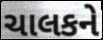
ચાલકને